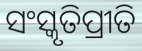
ସଂସ୍କୃତିପ୍ରୀତି